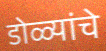
डोळ्यांचे